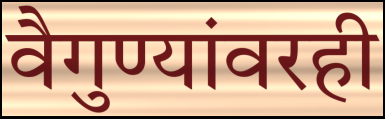
वैगुण्यांवरही